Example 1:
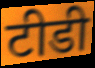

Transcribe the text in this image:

टीडी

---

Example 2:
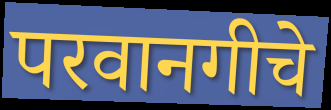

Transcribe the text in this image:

परवानगीचे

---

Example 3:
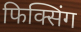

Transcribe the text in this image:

फिक्सिंग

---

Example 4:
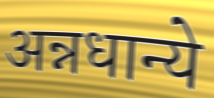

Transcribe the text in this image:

अन्नधान्ये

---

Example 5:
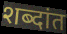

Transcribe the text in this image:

शब्दांत